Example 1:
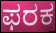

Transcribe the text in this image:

ಫರಕ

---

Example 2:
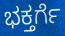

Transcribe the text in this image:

ಭಕ್ತರ್ಗೆ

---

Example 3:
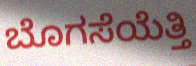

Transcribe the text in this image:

ಬೊಗಸೆಯೆತ್ತಿ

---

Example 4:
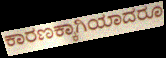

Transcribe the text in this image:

ಕಾರಣಕ್ಕಾಗಿಯಾದರೂ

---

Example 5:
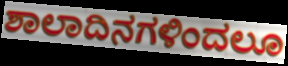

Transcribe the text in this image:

ಶಾಲಾದಿನಗಳಿಂದಲೂ